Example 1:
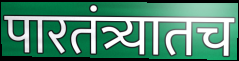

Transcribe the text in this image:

पारतंत्र्यातच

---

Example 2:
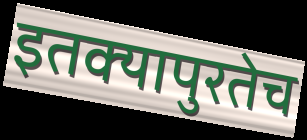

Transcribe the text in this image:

इतक्यापुरतेच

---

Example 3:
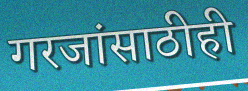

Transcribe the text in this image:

गरजांसाठीही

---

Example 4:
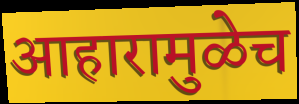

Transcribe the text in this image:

आहारामुळेच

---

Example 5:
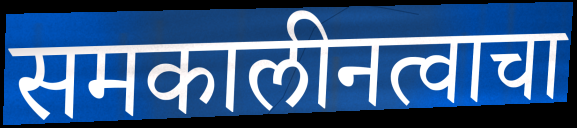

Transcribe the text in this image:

समकालीनत्वाचा